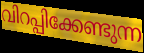
വിറപ്പിക്കേണ്ടുന്ന